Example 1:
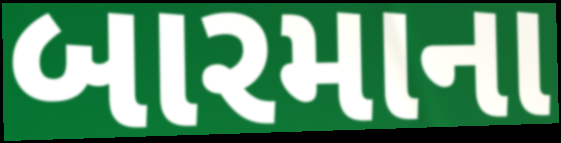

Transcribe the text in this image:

બારમાના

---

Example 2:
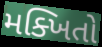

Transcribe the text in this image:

મક્ખિતો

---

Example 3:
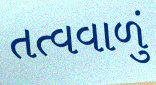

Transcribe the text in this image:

તત્વવાળું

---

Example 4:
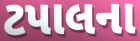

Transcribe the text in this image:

ટપાલના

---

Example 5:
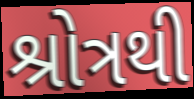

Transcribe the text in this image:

શ્રોત્રથી